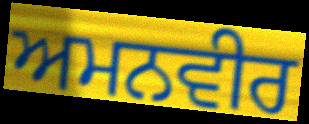
ਅਮਨਵੀਰ